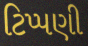
ટિપ્પણી